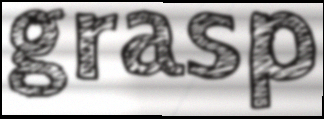
grasp